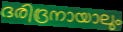
ദരിദ്രനായാലും